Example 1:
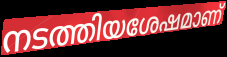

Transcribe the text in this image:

നടത്തിയശേഷമാണ്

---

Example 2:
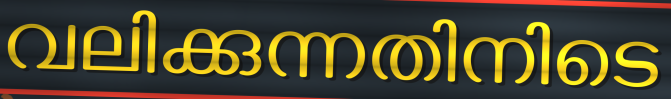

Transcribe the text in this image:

വലിക്കുന്നതിനിടെ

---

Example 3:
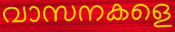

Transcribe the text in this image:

വാസനകളെ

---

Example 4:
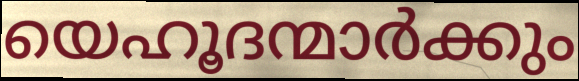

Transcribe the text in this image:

യെഹൂദന്മാർക്കും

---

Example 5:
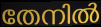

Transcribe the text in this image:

തേനിൽ